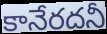
కానేరదనీ